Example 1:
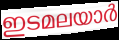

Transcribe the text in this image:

ഇടമലയാർ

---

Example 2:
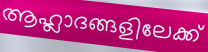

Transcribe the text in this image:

ആഹ്ലാദങ്ങളിലേക്ക്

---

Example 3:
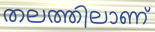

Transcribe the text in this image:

തലത്തിലാണ്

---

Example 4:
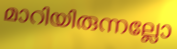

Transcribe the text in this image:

മാറിയിരുന്നല്ലോ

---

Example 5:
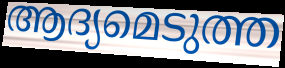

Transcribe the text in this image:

ആദ്യമെടുത്ത